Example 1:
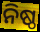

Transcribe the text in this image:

ନିଷ୍ଠ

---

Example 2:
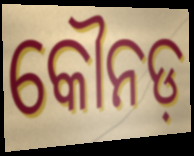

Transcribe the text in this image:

କୌନଡ଼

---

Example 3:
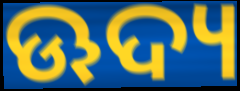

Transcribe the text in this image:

ଊଦ୍ୟ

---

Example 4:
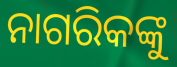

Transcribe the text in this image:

ନାଗରିକଙ୍କୁ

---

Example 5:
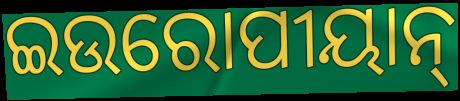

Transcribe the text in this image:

ଇଉରୋପୀୟାନ୍